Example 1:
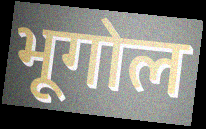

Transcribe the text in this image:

भूगोल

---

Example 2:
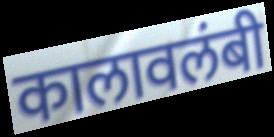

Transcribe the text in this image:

कालावलंबी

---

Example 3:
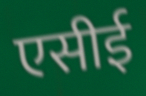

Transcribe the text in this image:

एसीई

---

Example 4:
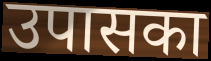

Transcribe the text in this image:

उपासका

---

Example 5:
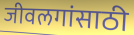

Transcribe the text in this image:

जीवलगांसाठी